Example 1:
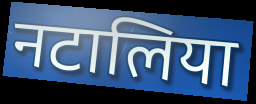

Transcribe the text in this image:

नटालिया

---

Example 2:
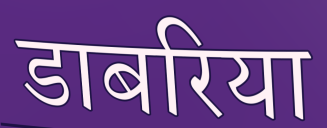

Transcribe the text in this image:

डाबरिया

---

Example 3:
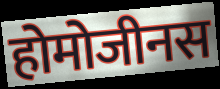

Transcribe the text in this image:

होमोजीनस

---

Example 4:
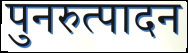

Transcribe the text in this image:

पुनरुत्पादन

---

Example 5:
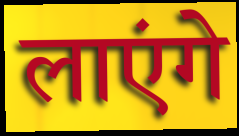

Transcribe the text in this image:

लाएंगे